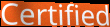
Certified